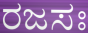
ರಜಸಃ